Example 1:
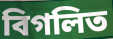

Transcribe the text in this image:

বিগলিত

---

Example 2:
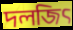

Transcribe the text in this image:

দলজিৎ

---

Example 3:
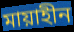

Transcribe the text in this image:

মায়াহীন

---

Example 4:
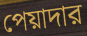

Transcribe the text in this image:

পেয়াদার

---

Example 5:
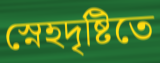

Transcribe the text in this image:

স্নেহদৃষ্টিতে